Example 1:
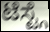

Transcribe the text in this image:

ಟೆಸ್ಟ್ಗೆ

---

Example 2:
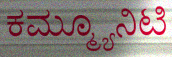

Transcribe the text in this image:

ಕಮ್ಮ್ಯೂನಿಟಿ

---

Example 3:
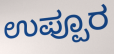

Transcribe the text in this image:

ಉಪ್ಪೂರ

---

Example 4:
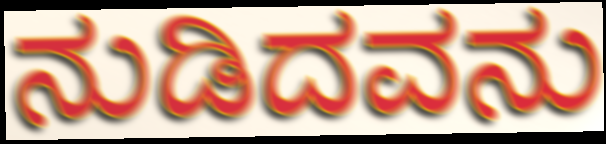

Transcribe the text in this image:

ನುಡಿದವನು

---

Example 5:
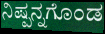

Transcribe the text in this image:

ನಿಷ್ಪನ್ನಗೊಂಡ